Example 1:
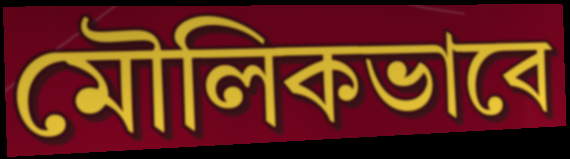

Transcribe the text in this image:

মৌলিকভাবে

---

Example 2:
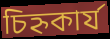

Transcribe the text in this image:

চিহ্নকার্য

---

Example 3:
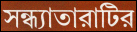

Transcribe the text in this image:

সন্ধ্যাতারাটির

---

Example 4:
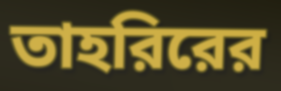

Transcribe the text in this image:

তাহরিরের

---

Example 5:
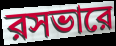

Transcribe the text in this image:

রসভারে